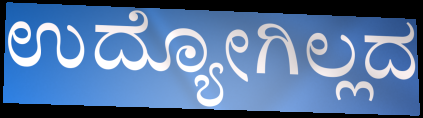
ಉದ್ಯೋಗಿಲ್ಲದ